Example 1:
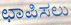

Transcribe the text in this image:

ಛಾಪಿಸಲು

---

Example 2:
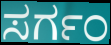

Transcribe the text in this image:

ಸರ್ಗಂ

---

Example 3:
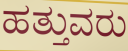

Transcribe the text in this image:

ಹತ್ತುವರು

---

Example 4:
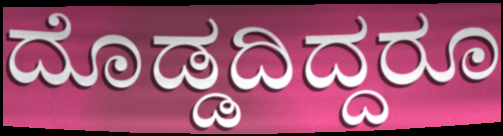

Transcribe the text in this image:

ದೊಡ್ಡದಿದ್ದರೂ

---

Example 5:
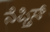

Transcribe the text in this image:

ನೆಫ್ತಿಸ್